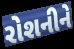
રોશનીને